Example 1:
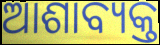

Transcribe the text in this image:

ଆଶାବ୍ୟକ୍ତ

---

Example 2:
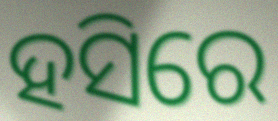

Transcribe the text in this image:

ହସିରେ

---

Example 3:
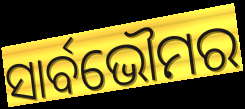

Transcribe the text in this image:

ସାର୍ବଭୌମର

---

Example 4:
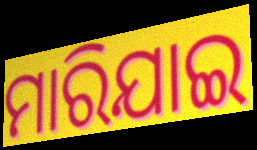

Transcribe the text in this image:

ମାରିଯାଇ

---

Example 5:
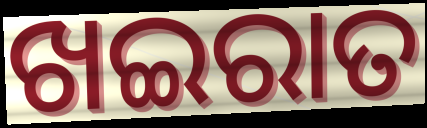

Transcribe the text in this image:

ଖଇରାତ